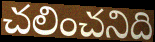
చలించనిది